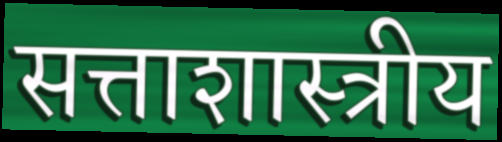
सत्ताशास्त्रीय